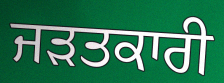
ਜੜਤਕਾਰੀ